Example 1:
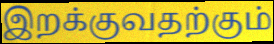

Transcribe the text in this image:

இறக்குவதற்கும்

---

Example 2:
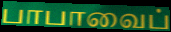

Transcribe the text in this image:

பாபாவைப்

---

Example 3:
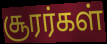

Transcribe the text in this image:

சூரர்கள்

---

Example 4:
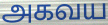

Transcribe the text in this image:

அகவய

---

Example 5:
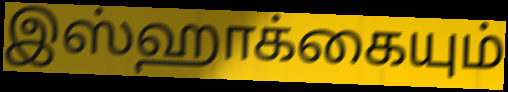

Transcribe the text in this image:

இஸ்ஹாக்கையும்